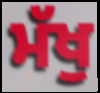
ਮੱਖੁ